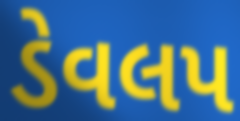
ડેવલપ